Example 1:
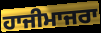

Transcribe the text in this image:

ਹਾਜੀਮਾਜਰਾ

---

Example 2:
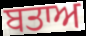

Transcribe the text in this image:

ਬਤਾਅ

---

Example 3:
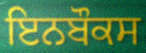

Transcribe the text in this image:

ਇਨਬੌਕਸ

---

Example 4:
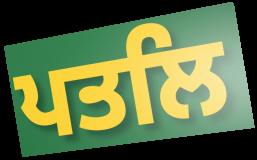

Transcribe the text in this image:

ਪਤਲਿ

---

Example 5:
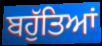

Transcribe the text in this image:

ਬਹੁੱਤਿਆਂ